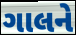
ગાલને